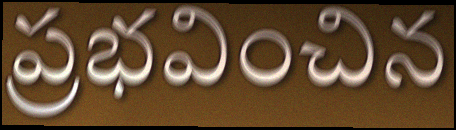
ప్రభవించిన